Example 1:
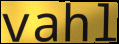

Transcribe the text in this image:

vahl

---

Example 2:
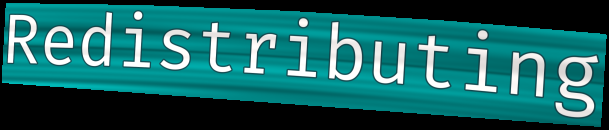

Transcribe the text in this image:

Redistributing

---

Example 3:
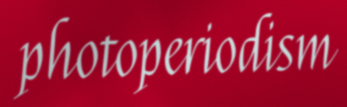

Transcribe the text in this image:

photoperiodism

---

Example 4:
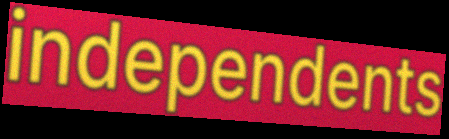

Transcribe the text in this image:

independents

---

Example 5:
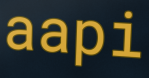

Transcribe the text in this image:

aapi